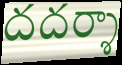
దదర్శా